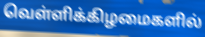
வெள்ளிக்கிழமைகளில்